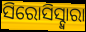
ସିରୋସିସ୍ଦ୍ୱାରା